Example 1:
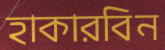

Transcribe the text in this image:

হাকারবিন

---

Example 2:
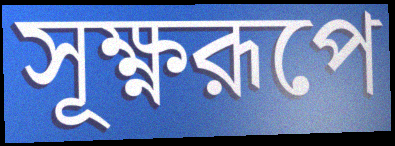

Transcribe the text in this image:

সূক্ষ্ণরূপে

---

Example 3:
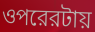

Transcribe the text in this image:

ওপরেরটায়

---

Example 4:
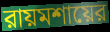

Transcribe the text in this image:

রায়মশায়ের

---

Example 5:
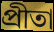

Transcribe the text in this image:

প্রীতা